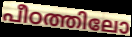
പീഠത്തിലോ